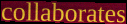
collaborates